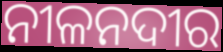
ନୀଳନଦୀର